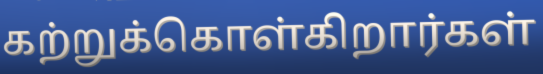
கற்றுக்கொள்கிறார்கள்